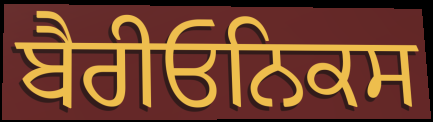
ਬੈਰੀਓਨਿਕਸ